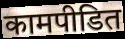
कामपीडित